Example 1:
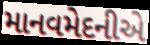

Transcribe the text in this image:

માનવમેદનીએ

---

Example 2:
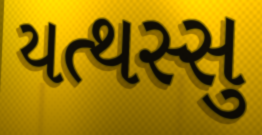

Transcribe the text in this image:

યત્થસ્સુ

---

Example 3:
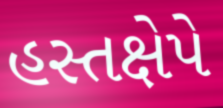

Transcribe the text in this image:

હસ્તક્ષેપે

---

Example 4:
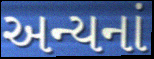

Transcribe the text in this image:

અન્યનાં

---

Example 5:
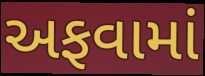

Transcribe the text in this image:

અફવામાં